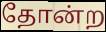
தோன்ற